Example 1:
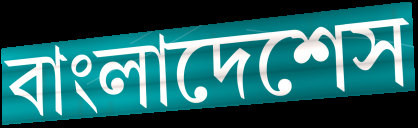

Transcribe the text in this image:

বাংলাদেশেস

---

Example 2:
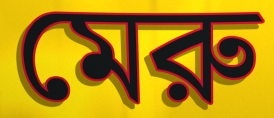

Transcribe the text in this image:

মেরু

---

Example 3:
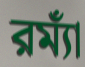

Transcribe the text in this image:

রম্যাঁ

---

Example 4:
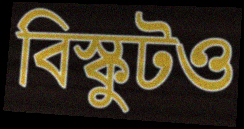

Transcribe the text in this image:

বিস্কুটও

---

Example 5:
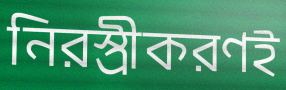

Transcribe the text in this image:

নিরস্ত্রীকরণই